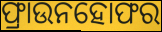
ଫ୍ରାଉନହୋଫର